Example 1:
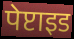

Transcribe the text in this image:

पेप्टाइड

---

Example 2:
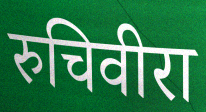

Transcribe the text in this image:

रुचिवीरा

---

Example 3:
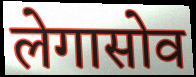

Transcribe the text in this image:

लेगासोव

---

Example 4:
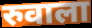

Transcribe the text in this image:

रुवाला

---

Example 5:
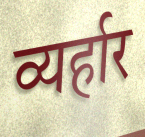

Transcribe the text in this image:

व्यर्हार